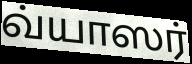
வ்யாஸர்